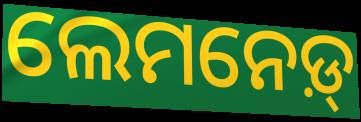
ଲେମନେଡ଼୍